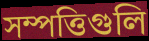
সম্পত্তিগুলি